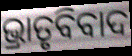
ଭ୍ରାତୃବିବାଦ